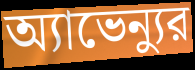
অ্যাভেন্যুর